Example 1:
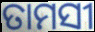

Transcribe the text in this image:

ତାମସୀ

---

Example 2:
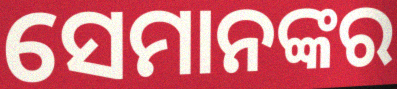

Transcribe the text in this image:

ସେମାନଙ୍କର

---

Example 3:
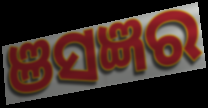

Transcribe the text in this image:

ଞସଜ୍ଞର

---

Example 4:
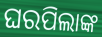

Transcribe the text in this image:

ଘରପିଲାଙ୍କ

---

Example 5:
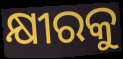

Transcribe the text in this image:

କ୍ଷୀରକୁ